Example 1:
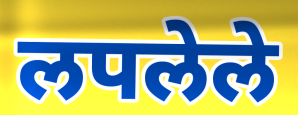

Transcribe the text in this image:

लपलेले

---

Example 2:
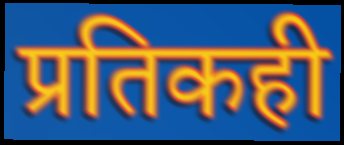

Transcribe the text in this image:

प्रतिकही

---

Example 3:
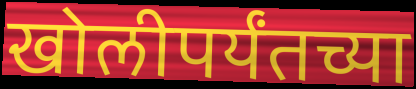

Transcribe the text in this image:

खोलीपर्यंतच्या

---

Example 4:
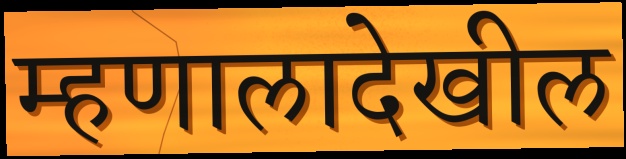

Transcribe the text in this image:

म्हणालादेखील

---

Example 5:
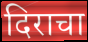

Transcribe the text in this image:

दिराचा